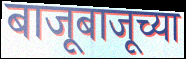
बाजूबाजूच्या